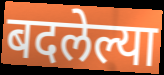
बदलेल्या